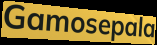
Gamosepala